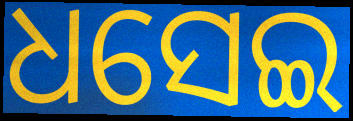
ଧସେଇ